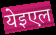
येइएल